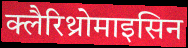
क्लैरिथ्रोमाइसिन